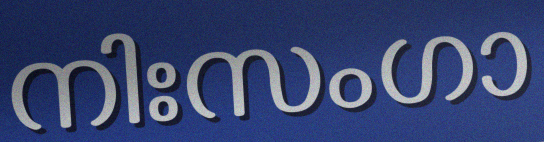
നിഃസംഗാ